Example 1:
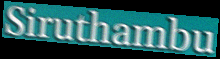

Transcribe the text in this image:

Siruthambu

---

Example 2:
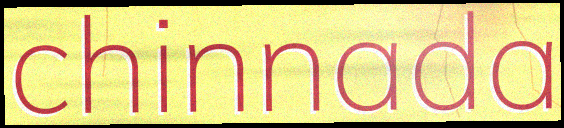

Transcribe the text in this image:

chinnada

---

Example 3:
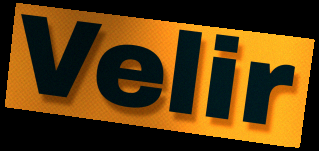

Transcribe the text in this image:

Velir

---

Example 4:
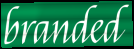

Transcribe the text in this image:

branded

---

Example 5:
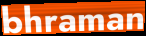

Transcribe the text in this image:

bhraman